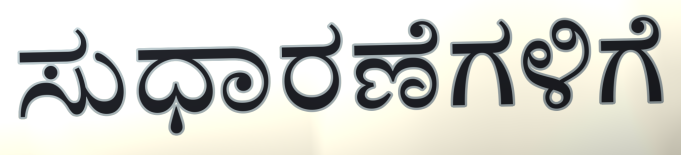
ಸುಧಾರಣೆಗಳಿಗೆ